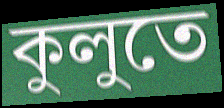
কুলুতে